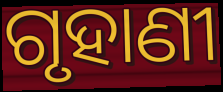
ଗୃହାଣୀ